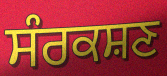
ਸੰਰਕਸ਼ਣ